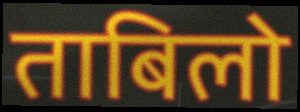
ताबिलो